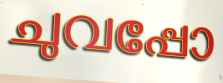
ചുവപ്പോ